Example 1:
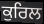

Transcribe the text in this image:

ਕੁਰਿਲ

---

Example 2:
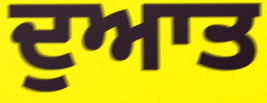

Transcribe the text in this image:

ਦੁਆਤ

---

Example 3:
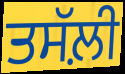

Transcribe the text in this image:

ਤਸੱਲ਼ੀ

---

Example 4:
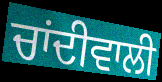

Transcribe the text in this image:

ਚਾਂਦੀਵਾਲੀ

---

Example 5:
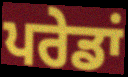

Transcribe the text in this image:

ਪਰੇਡਾਂ